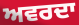
ਅਵਰਦਾ